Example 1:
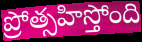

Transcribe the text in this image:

ప్రోత్సహిస్తోంది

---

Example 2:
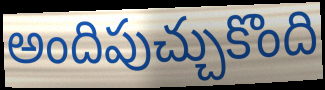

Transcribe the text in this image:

అందిపుచ్చుకొంది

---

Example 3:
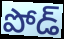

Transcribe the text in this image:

పోడ్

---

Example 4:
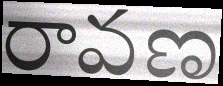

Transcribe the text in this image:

రావణ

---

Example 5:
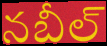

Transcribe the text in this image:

నబీల్